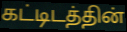
கட்டிடத்தின்